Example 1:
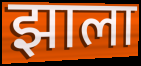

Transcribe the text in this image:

झाला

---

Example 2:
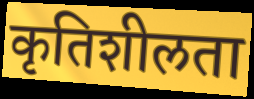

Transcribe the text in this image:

कृतिशीलता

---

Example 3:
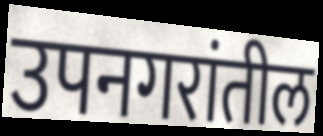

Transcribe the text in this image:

उपनगरांतील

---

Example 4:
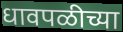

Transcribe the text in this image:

धावपळीच्या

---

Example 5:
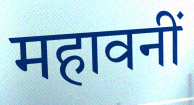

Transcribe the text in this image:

महावनीं